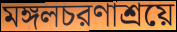
মঙ্গলচরণাশ্রয়ে